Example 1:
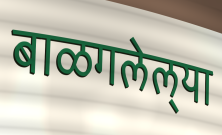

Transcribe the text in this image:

बाळगलेल्या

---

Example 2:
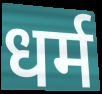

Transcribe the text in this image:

धर्म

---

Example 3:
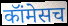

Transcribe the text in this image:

कॉंमेसच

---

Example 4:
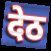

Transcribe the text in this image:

देठ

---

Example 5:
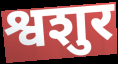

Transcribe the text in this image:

श्वशुर